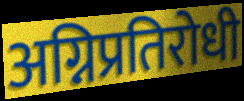
अग्निप्रतिरोधी